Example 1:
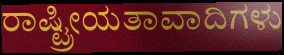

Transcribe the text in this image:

ರಾಷ್ಟ್ರೀಯತಾವಾದಿಗಳು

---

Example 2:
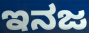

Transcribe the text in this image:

ಇನಜ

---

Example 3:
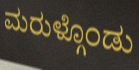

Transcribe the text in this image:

ಮರುಳ್ಗೊಂಡು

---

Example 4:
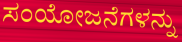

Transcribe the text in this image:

ಸಂಯೋಜನೆಗಳನ್ನು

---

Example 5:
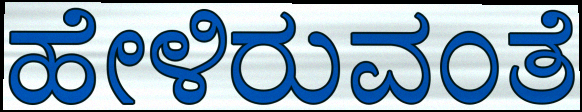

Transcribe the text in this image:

ಹೇಳಿರುವಂತೆ